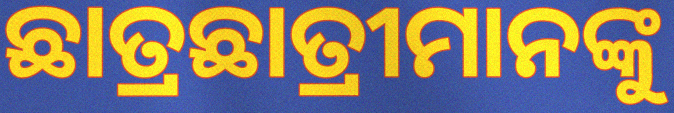
ଛାତ୍ରଛାତ୍ରୀମାନଙ୍କୁ